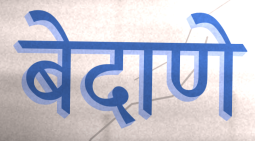
बेदाणे